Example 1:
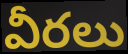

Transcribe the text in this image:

వీరలు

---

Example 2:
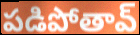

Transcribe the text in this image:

పడిపోతావ్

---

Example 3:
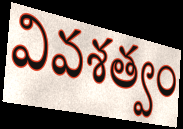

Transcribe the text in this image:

వివశత్వం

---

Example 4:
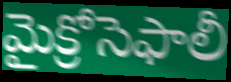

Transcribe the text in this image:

మైక్రోసెఫాలీ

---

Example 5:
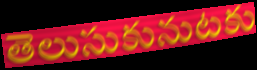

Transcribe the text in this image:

తెలుసుకునుటకు